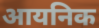
आयनिक